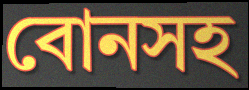
বোনসহ